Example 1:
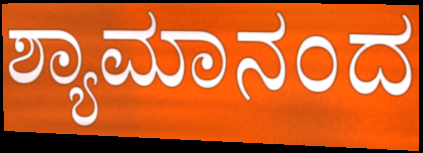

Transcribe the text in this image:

ಶ್ಯಾಮಾನಂದ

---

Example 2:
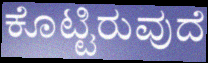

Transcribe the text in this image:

ಕೊಟ್ಟಿರುವುದೆ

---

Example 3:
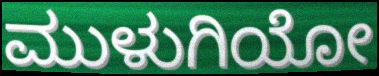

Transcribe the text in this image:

ಮುಳುಗಿಯೋ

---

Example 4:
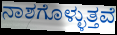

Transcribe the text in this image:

ನಾಶಗೊಳ್ಳುತ್ತವೆ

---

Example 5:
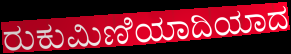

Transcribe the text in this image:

ರುಕುಮಿಣಿಯಾದಿಯಾದ